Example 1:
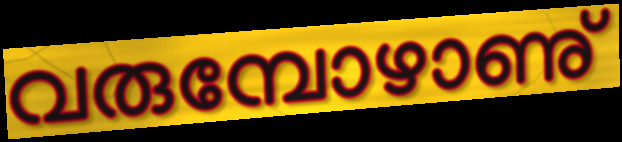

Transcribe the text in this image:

വരുമ്പോഴാണു്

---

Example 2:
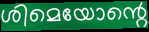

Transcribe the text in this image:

ശിമെയോന്റെ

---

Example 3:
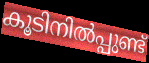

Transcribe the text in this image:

കൂടിനിൽപ്പുണ്ട്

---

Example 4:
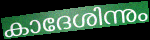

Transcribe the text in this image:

കാദേശിന്നും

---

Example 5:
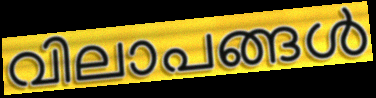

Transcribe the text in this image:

വിലാപങ്ങൾ